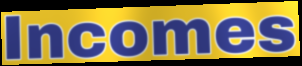
Incomes